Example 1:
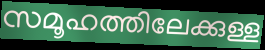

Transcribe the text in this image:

സമൂഹത്തിലേക്കുള്ള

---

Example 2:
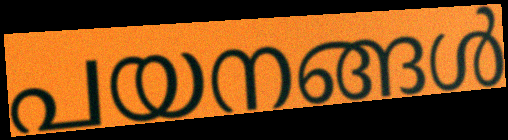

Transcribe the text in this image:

പയനങ്ങൾ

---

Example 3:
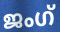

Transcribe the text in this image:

ജംഗ്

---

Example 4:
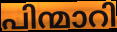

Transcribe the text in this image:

പിന്മാറി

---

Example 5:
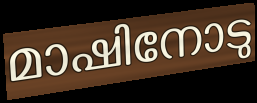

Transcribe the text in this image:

മാഷിനോടു